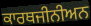
ਕਾਰਥਜੀਨੀਅਨ